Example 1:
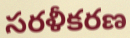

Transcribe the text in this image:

సరళీకరణ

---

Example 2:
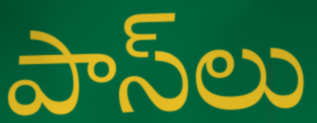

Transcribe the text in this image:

పాస్‌లు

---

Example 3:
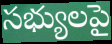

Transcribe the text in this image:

సభ్యులపై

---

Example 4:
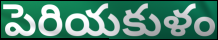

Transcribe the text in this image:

పెరియకుళం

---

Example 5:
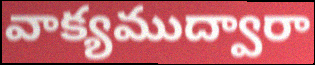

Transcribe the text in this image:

వాక్యముద్వారా